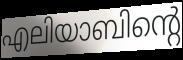
എലിയാബിന്റെ